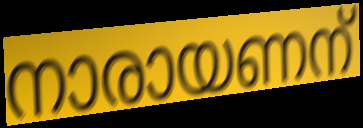
നാരായണന്